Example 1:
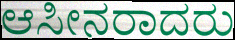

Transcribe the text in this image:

ಆಸೀನರಾದರು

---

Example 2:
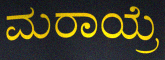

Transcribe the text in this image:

ಮರಾಯ್ರೆ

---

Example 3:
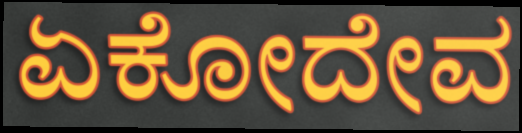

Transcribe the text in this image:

ಏಕೋದೇವ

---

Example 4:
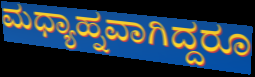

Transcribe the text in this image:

ಮಧ್ಯಾಹ್ನವಾಗಿದ್ದರೂ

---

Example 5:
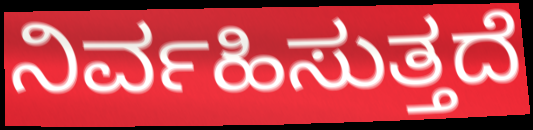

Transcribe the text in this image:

ನಿರ್ವಹಿಸುತ್ತದೆ